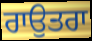
ਰਾਉਤਰਾ